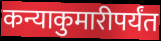
कन्याकुमारीपर्यंत